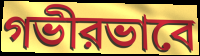
গভীরভাবে